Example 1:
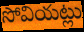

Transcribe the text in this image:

సోవియట్లు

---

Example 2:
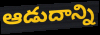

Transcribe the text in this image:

ఆడుదాన్ని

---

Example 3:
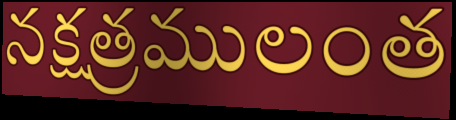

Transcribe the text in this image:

నక్షత్రములంత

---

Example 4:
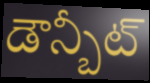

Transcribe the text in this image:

డౌన్బీట్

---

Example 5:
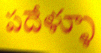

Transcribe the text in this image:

పదేళ్ళూ